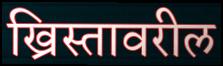
ख्रिस्तावरील